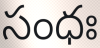
సంధః